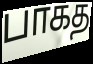
பாகத